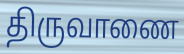
திருவாணை